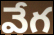
వేగ